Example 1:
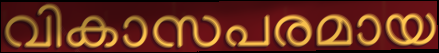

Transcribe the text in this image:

വികാസപരമായ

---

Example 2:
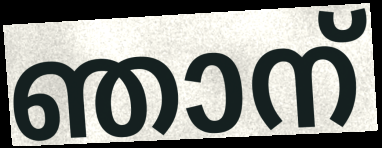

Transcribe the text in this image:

ഞാന്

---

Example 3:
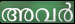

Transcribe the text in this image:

അവർ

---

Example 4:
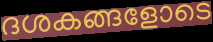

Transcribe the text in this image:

ദശകങ്ങളോടെ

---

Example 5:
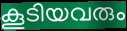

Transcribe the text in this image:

കൂടിയവരും